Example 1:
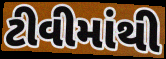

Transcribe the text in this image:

ટીવીમાંથી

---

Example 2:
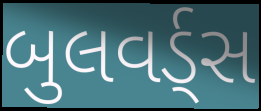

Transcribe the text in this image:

બુલવર્ડ્સ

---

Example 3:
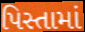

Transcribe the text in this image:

પિસ્તામાં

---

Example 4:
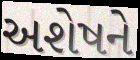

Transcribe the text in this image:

અશેષને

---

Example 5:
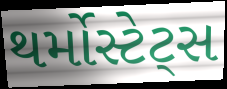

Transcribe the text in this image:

થર્મોસ્ટેટ્સ